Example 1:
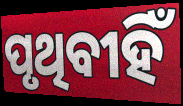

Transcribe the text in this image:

ପୃଥିବୀହିଁ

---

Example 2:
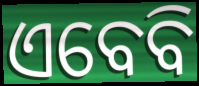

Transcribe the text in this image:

ଏବେବି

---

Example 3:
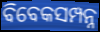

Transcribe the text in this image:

ବିବେକସମ୍ପନ୍ନ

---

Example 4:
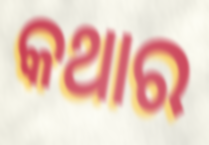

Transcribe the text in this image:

କଥାର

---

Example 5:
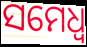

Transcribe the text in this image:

ସମେଧ୍ୱ